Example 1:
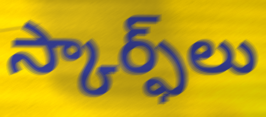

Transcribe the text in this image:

స్కార్ఫ్‌లు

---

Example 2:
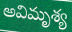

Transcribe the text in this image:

అవిమృశ్య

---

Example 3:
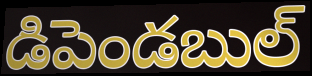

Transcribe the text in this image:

డిపెండబుల్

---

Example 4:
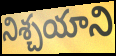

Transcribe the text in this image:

నిశ్చయాని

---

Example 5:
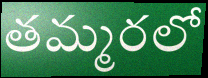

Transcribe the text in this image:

తమ్మరలో